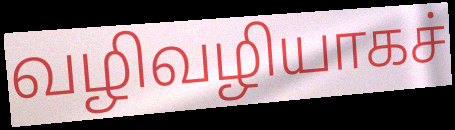
வழிவழியாகச்